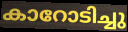
കാറോടിച്ചു